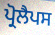
ਪ੍ਰੋਲੈਪਸ